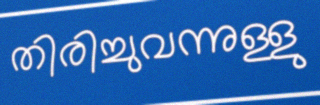
തിരിച്ചുവന്നുള്ളു